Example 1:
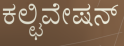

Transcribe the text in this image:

ಕಲ್ಟಿವೇಷನ್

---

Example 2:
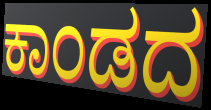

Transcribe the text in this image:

ಕಾಂಡದ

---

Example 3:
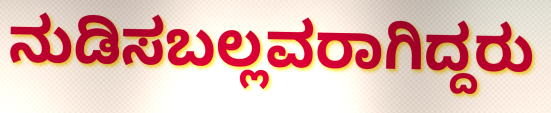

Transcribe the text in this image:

ನುಡಿಸಬಲ್ಲವರಾಗಿದ್ದರು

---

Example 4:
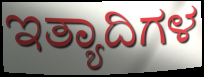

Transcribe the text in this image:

ಇತ್ಯಾದಿಗಳ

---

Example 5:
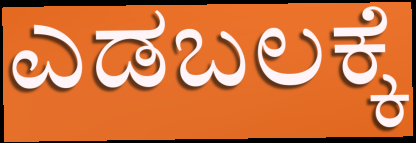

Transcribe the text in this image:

ಎಡಬಲಕ್ಕೆ